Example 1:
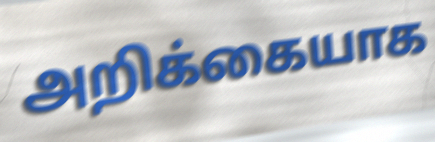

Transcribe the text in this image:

அறிக்கையாக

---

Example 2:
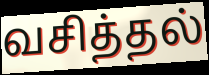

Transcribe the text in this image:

வசித்தல்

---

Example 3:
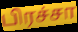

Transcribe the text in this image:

பிரச்சா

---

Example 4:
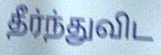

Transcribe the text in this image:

தீர்ந்துவிட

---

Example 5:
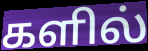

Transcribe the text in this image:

களில்